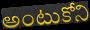
అంటుకోని